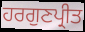
ਹਰਗੁਣਪ੍ਰੀਤ